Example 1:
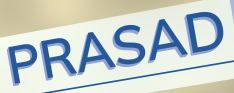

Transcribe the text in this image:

PRASAD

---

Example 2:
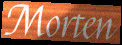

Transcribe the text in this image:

Morten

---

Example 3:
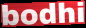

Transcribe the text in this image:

bodhi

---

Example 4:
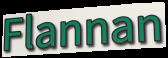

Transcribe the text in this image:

Flannan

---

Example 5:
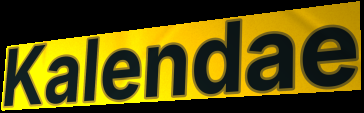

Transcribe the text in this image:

Kalendae